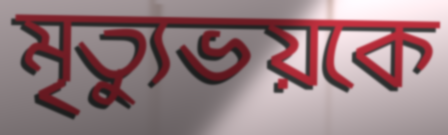
মৃত্যুভয়কে